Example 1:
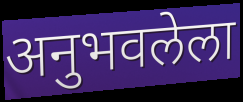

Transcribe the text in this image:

अनुभवलेला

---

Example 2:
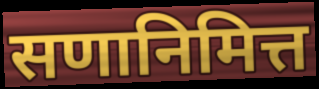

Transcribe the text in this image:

सणानिमित्त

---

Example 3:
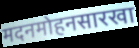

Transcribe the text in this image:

मदनमोहनसारखा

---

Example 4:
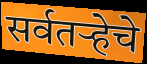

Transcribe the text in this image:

सर्वतऱ्हेचे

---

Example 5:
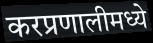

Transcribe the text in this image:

करप्रणालीमध्ये